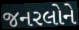
જનરલોને